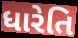
ધારેતિ